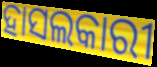
ହାସଲକାରୀ